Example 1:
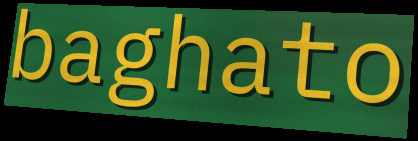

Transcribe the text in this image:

baghato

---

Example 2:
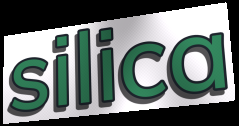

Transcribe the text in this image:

silica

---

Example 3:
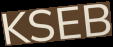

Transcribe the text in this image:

KSEB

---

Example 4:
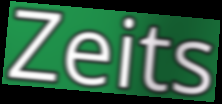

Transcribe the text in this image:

Zeits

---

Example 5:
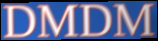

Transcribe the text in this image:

DMDM